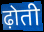
ढ़ोती